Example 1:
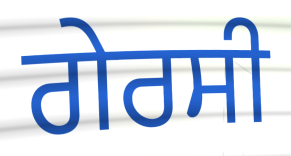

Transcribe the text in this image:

ਗੇਰਸੀ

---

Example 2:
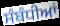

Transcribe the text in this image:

ਸੰਬੰਧੀਆਂ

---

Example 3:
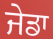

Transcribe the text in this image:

ਜੇਡਾ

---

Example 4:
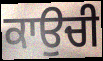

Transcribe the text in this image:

ਕਾਉਚੀ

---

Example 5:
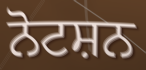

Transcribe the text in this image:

ਨੋਟਸ਼ਨ